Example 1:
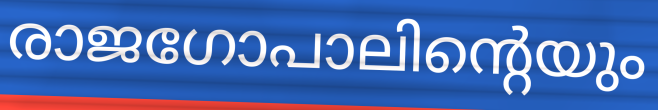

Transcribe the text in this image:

രാജഗോപാലിന്റെയും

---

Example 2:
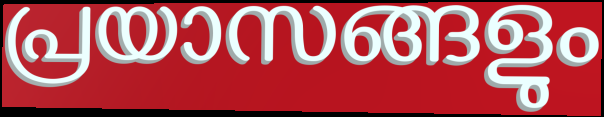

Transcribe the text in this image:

പ്രയാസങ്ങളും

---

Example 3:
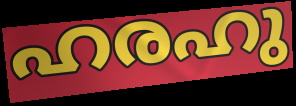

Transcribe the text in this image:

ഹരഹു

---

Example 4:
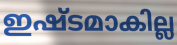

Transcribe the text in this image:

ഇഷ്ടമാകില്ല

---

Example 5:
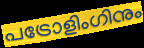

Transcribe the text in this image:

പട്രോളിംഗിനും